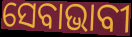
ସେବାଭାବୀ